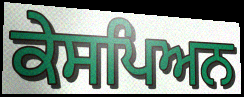
ਕੇਸਪਿਅਨ